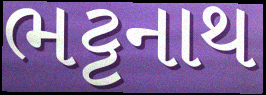
ભટ્ટનાથ